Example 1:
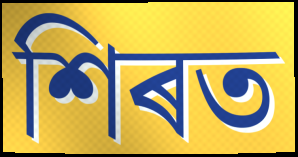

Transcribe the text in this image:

শিৰত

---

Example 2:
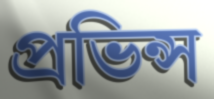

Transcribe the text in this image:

প্ৰভিন্স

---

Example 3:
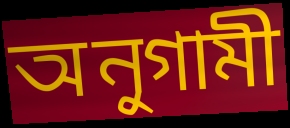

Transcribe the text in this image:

অনুগামী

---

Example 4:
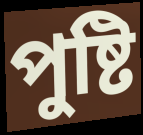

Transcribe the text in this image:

পুষ্টি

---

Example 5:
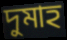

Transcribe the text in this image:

দুমাহ